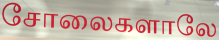
சோலைகளாலே